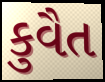
કુવૈત